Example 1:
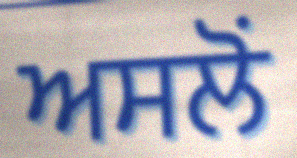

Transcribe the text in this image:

ਅਸਲੋਂ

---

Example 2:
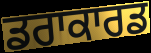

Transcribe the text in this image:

ਡਰਾਕਾਰਡ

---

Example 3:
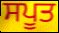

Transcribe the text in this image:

ਸਪੂਤ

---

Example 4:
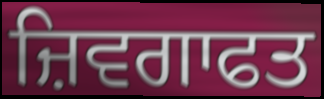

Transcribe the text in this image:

ਜ਼ਿਵਗਾਫਤ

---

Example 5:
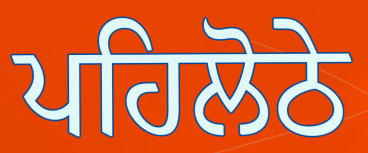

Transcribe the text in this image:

ਪਹਿਲੋਠੇ